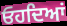
ਓਹਦਿਆਂ